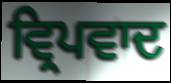
ਵ੍ਰਿਪਵਾਦ